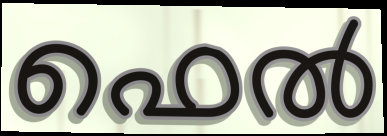
ഫെൽ